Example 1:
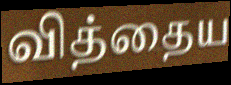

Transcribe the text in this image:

வித்தைய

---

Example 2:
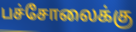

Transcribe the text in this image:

பச்சோலைக்கு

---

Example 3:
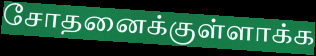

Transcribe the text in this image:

சோதனைக்குள்ளாக்க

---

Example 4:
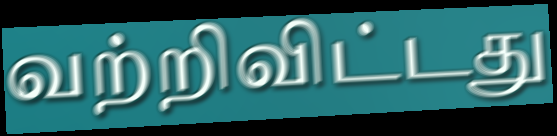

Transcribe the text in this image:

வற்றிவிட்டது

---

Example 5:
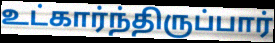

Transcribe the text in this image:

உட்கார்ந்திருப்பார்